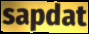
sapdat